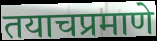
तयाचप्रमाणे